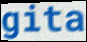
gita